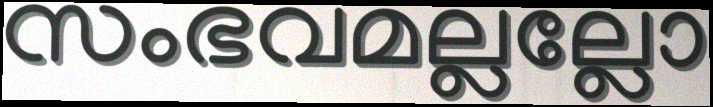
സംഭവമല്ലല്ലോ